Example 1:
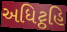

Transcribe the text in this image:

અધિટ્ઠહિ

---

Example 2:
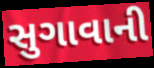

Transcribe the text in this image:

સુગાવાની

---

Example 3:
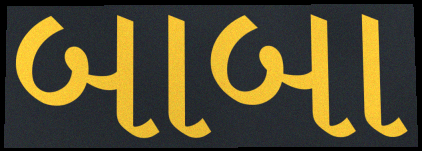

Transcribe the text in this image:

બાબા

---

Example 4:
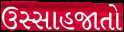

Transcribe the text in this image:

ઉસ્સાહજાતો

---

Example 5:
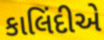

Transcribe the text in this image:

કાલિંદીએ